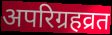
अपरिग्रहव्रत